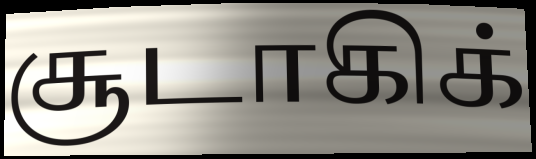
சூடாகிக்